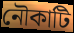
নৌকাটি